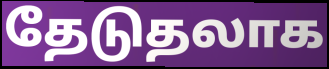
தேடுதலாக